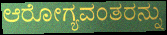
ಆರೋಗ್ಯವಂತರನ್ನು